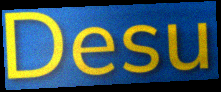
Desu